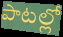
పాటల్లో